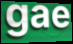
gae